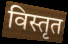
विस्तृत